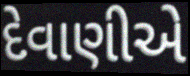
દેવાણીએ